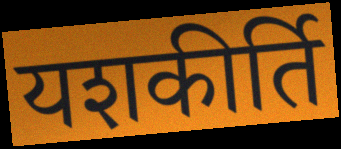
यशकीर्ति